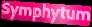
Symphytum